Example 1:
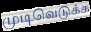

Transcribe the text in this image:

முடிவெடுக்க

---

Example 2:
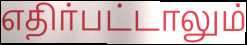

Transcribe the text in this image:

எதிர்பட்டாலும்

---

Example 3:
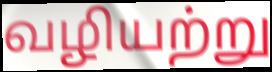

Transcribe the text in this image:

வழியற்று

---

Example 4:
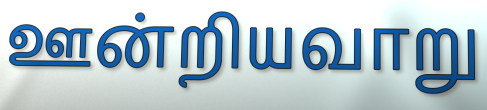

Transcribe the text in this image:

ஊன்றியவாறு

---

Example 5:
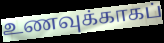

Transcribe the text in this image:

உணவுக்காகப்